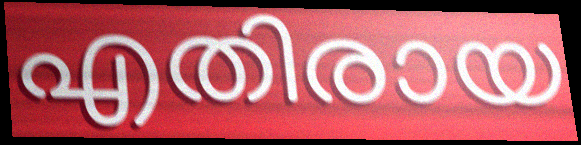
എതിരായ